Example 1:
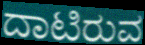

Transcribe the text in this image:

ದಾಟಿರುವ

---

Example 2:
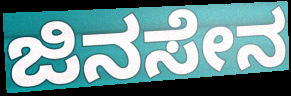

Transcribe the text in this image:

ಜಿನಸೇನ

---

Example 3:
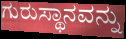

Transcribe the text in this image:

ಗುರುಸ್ಥಾನವನ್ನು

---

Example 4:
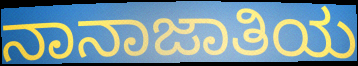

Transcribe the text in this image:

ನಾನಾಜಾತಿಯ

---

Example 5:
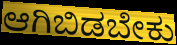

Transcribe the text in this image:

ಆಗಿಬಿಡಬೇಕು